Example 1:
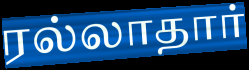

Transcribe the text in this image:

ரல்லாதார்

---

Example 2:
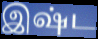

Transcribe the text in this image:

இஷ்ட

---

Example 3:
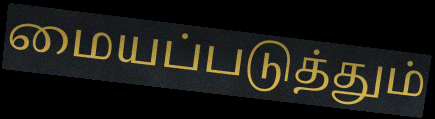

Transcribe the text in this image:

மையப்படுத்தும்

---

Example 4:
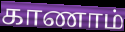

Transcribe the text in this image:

காணாம்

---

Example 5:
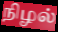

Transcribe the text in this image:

நிழல்